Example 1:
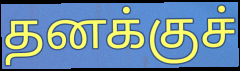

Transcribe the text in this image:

தனக்குச்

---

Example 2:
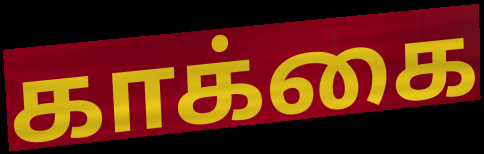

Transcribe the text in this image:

காக்கை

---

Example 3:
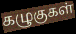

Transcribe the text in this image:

கழுகுகள்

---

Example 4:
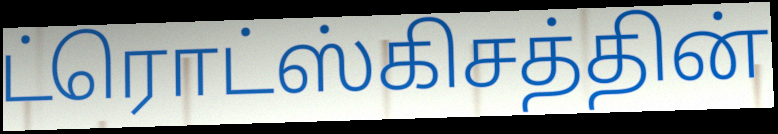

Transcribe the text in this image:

ட்ரொட்ஸ்கிசத்தின்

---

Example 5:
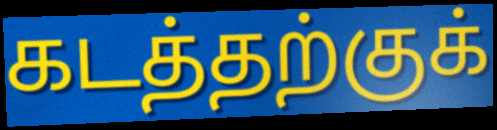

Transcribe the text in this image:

கடத்தற்குக்